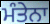
ਮੰਤੇਨਾ